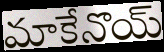
మాకేనొయ్